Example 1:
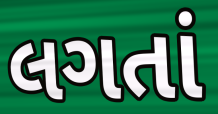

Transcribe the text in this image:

લગતાં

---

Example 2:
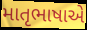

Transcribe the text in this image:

માતૃભાષાએ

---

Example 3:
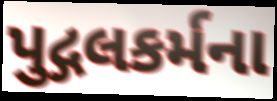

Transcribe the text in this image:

પુદ્ગલકર્મના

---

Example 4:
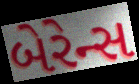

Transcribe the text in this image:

બેરેન્સ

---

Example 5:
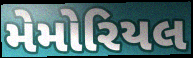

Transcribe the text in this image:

મેમોરિયલ